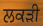
ਲਕੜੀ